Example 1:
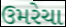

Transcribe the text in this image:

ઉમરેચા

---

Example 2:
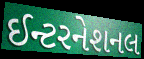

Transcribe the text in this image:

ઈન્ટરનેશનલ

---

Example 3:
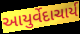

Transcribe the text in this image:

આયુર્વેદાચાર્ય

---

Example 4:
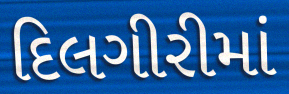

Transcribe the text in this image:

દિલગીરીમાં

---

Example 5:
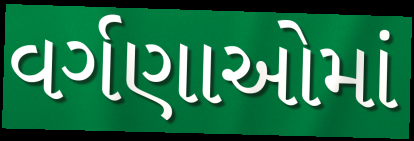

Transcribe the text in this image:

વર્ગણાઓમાં